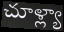
చూళ్ల్యా